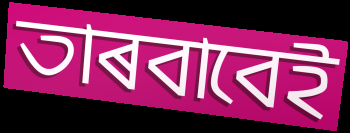
তাৰবাবেই